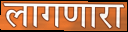
लागणारा